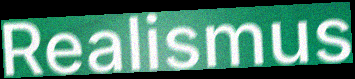
Realismus